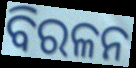
ବିରଳନ